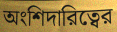
অংশিদারিত্বের